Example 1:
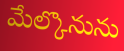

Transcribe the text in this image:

మేల్కొనును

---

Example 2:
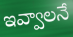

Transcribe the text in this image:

ఇవ్వాలనే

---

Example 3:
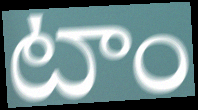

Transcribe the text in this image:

టాం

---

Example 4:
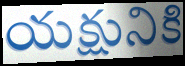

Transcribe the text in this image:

యక్షునికి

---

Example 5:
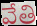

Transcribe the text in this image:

వేతి